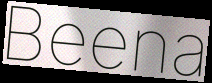
Beena